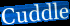
Cuddle